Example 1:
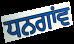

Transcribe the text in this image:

ਧਨਗਾਂਵ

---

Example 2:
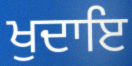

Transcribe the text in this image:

ਖੁਦਾਇ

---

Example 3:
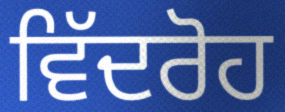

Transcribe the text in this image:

ਵਿੱਦਰੋਹ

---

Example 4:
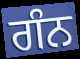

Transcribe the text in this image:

ਗੰਨ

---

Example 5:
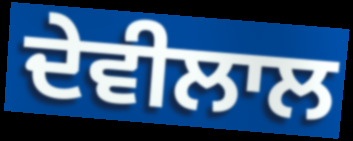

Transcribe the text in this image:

ਦੇਵੀਲਾਲ